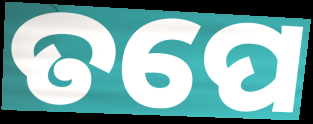
ତପେ